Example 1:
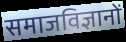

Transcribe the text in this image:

समाजविज्ञानों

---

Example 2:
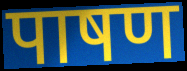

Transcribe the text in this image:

पाषण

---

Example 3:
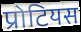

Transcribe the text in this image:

प्रोटियस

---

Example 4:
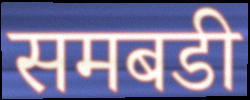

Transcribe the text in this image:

समबडी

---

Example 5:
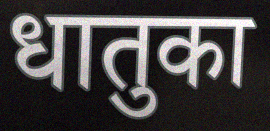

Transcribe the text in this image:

धातुका